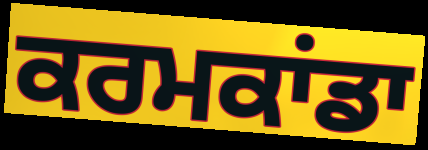
ਕਰਮਕਾਂਡਾ